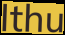
Ithu